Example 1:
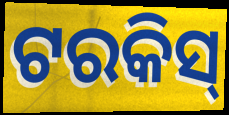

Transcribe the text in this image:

ଟରକିସ୍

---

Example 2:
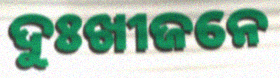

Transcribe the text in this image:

ଦୁଃଖୀଜନେ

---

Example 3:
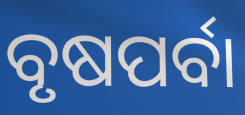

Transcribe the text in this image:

ବୃଷପର୍ବା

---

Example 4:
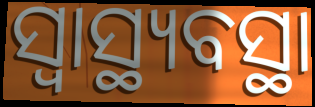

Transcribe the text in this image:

ସ୍ୱାସ୍ଥ୍ୟବସ୍ଥା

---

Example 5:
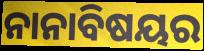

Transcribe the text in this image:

ନାନାବିଷୟର